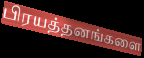
பிரயத்தனங்களை